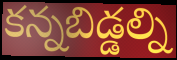
కన్నబిడ్డల్ని